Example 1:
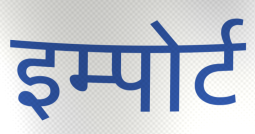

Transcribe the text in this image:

इम्पोर्ट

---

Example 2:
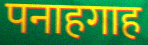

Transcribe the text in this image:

पनाहगाह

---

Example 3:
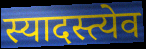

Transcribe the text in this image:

स्यादस्त्येव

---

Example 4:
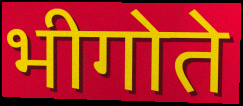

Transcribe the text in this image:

भीगोते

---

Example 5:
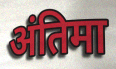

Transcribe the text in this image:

अंतिमा